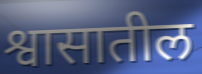
श्वासातील